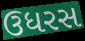
ઉધરસ